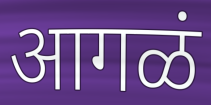
आगळं